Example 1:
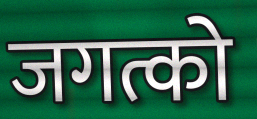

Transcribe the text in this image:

जगत्को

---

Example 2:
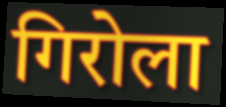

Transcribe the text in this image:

गिरोला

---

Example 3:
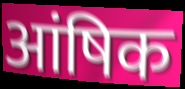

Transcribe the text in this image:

आंषिक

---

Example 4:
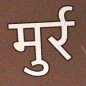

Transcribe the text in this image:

मुर्र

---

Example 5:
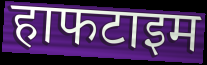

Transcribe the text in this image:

हाफटाइम